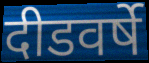
दीडवर्षे